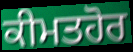
ਕੀਮਤਹੋਰ